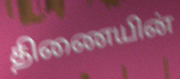
திணையின்